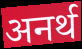
अनर्थ